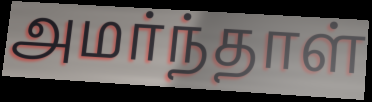
அமர்ந்தாள்